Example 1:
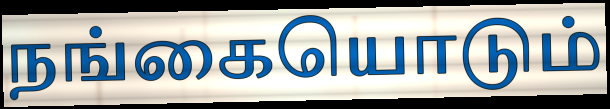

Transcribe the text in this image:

நங்கையொடும்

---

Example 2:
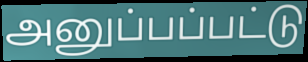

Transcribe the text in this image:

அனுப்பப்பட்டு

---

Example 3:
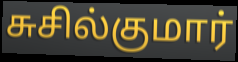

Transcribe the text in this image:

சுசில்குமார்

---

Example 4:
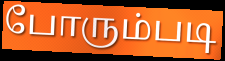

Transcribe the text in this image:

போரும்படி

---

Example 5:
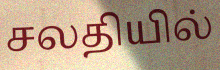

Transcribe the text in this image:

சலதியில்